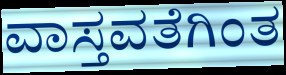
ವಾಸ್ತವತೆಗಿಂತ